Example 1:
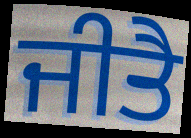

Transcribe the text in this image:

ਜੀਤੈ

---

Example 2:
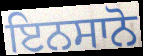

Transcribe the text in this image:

ਇਨਸਾਨੋ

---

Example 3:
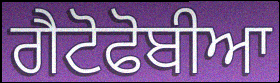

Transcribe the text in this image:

ਗੈਟੋਫੋਬੀਆ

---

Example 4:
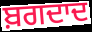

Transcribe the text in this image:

ਬ਼ਗਦਾਦ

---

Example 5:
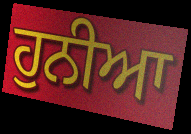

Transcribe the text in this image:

ਹੁਨੀਆ